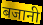
बजानी